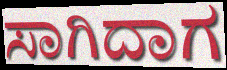
ಸಾಗಿದಾಗ